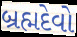
બ્રહ્મદેવો